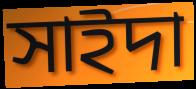
সাইদা